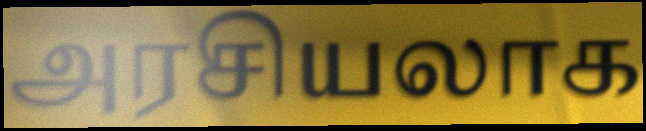
அரசியலாக